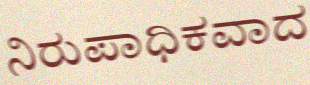
ನಿರುಪಾಧಿಕವಾದ